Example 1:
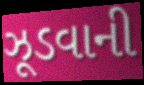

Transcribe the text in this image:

ઝૂડવાની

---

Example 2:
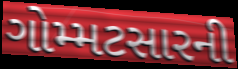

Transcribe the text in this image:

ગોમ્મટસારની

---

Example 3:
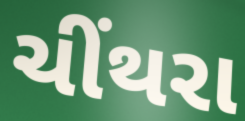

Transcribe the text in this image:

ચીંથરા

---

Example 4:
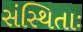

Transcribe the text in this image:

સંસ્થિતાઃ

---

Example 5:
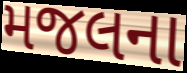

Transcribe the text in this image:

મજલના